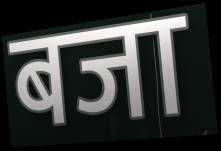
बजा